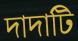
দাদাটি